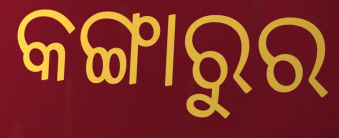
କଙ୍ଗାରୁର